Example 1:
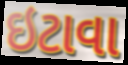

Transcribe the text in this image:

ઇટાવા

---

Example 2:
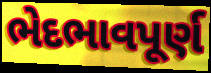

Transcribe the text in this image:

ભેદભાવપૂર્ણ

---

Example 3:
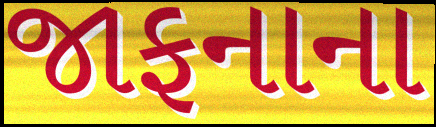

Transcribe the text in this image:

જાફનાના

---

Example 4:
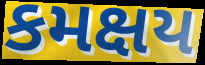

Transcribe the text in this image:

કમક્ષય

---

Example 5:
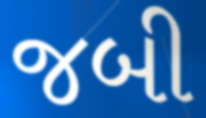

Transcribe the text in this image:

જબી